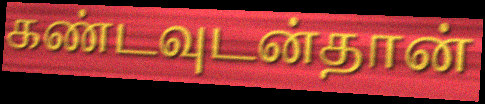
கண்டவுடன்தான்